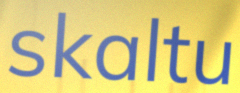
skaltu